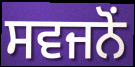
ਸਵਜਨੋਂ